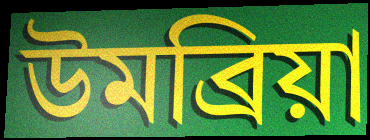
উমব্রিয়া